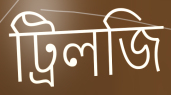
ট্রিলজি